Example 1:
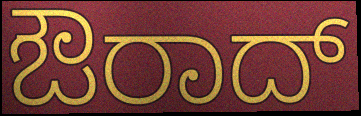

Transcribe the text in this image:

ಔರಾದ್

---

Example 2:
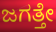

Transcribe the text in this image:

ಜಗತ್ತೇ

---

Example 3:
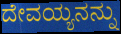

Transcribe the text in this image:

ದೇವಯ್ಯನನ್ನು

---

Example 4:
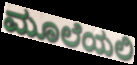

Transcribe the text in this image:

ಮೂಲೆಯಲಿ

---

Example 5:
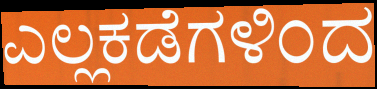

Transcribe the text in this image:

ಎಲ್ಲಕಡೆಗಳಿಂದ